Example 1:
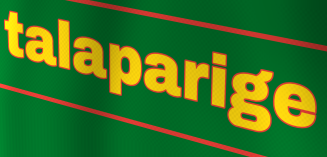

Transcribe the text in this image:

talaparige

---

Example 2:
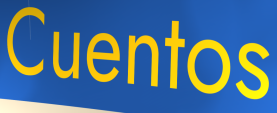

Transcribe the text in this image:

Cuentos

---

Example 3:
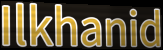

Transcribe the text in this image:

Ilkhanid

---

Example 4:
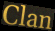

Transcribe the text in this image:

Clan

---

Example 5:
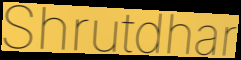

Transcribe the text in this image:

Shrutdhar